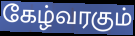
கேழ்வரகும்